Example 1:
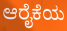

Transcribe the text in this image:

ಆರೈಕೆಯ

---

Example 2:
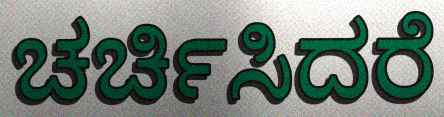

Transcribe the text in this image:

ಚರ್ಚಿಸಿದರೆ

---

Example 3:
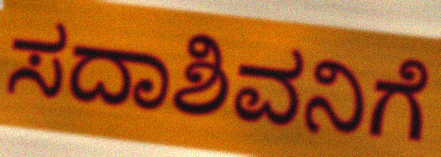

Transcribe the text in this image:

ಸದಾಶಿವನಿಗೆ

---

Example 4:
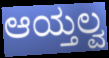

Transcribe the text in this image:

ಆಯ್ತಲ್ವ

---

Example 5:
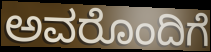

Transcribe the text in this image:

ಅವರೊಂದಿಗೆ